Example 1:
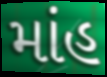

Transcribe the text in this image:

માંહ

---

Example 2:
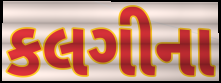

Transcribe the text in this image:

કલગીના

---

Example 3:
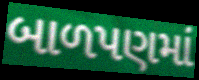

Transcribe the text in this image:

બાળપણમાં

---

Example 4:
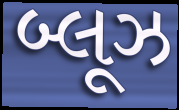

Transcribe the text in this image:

બ્લૂઝ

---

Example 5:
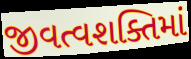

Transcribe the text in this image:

જીવત્વશક્તિમાં